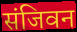
संजिवन